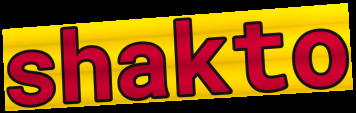
shakto